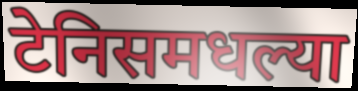
टेनिसमधल्या